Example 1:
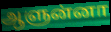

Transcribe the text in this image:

ஆளுன்னா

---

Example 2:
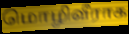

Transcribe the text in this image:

மொழிவீராக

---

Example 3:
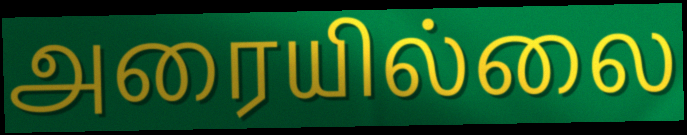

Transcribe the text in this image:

அரையில்லை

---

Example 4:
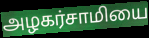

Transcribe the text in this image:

அழகர்சாமியை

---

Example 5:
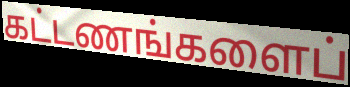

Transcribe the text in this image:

கட்டணங்களைப்